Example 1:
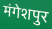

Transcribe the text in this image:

मंगेशपुर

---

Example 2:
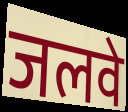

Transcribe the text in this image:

जलवे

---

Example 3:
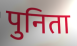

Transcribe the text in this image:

पुनिता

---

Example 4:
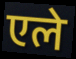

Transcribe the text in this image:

एले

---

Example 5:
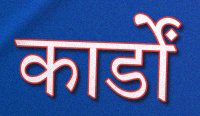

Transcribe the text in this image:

कार्डों